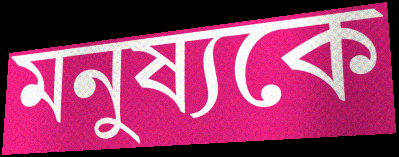
মনুষ্যকে